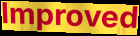
Improved